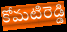
కోమటిరెడ్డి